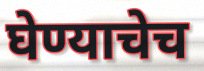
घेण्याचेच